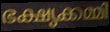
ഭക്ഷ്യക്കമ്മി